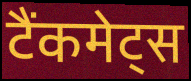
टैंकमेट्स